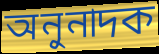
অনুনাদক